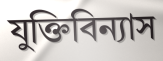
যুক্তিবিন্যাস